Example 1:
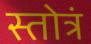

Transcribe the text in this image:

स्तोत्रं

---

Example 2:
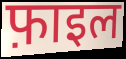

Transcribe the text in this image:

फ़ाइल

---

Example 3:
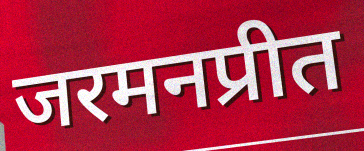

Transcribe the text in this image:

जरमनप्रीत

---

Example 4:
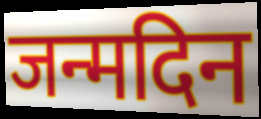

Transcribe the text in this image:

जन्‍मदिन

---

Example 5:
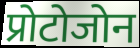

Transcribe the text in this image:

प्रोटोजोन